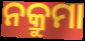
ନକ୍ରୁମା